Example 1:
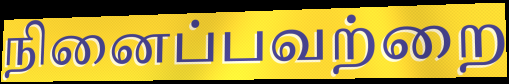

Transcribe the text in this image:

நினைப்பவற்றை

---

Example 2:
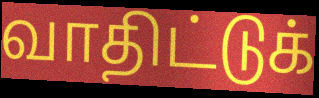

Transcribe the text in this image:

வாதிட்டுக்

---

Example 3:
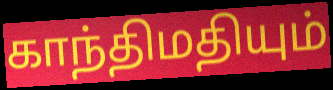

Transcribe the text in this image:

காந்திமதியும்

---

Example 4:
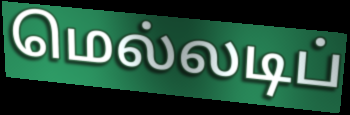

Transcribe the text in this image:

மெல்லடிப்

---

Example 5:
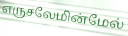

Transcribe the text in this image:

எருசலேமின்மேல்